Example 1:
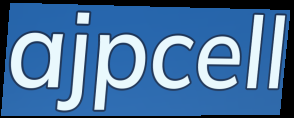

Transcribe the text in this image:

ajpcell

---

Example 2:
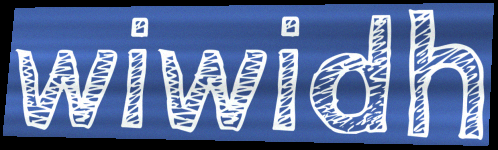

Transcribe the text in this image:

wiwidh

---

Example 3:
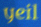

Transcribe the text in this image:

yeil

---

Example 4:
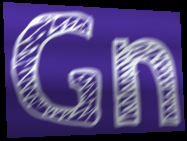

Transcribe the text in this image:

Gn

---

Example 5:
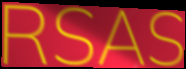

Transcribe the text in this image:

RSAS